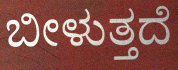
ಬೀಳುತ್ತದೆ